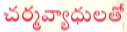
చర్మవ్యాధులతో